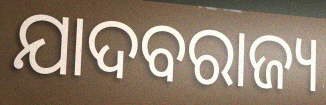
ଯାଦବରାଜ୍ୟ